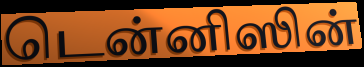
டென்னிஸின்